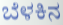
ಬೆಳಕಿನ